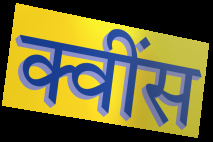
क्वींस